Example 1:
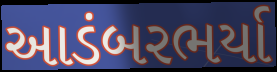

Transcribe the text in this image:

આડંબરભર્યા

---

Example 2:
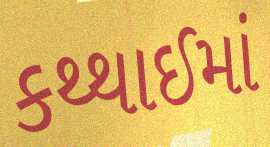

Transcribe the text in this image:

કથ્થાઈમાં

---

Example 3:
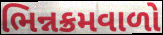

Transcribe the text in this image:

ભિન્નક્રમવાળો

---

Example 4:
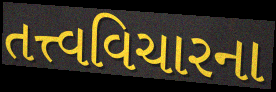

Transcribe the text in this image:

તત્ત્વવિચારના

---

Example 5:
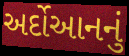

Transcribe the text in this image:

અર્દોઆનનું